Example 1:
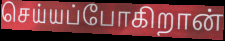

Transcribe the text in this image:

செய்யப்போகிறான்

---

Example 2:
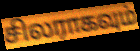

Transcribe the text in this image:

சிலராகவும்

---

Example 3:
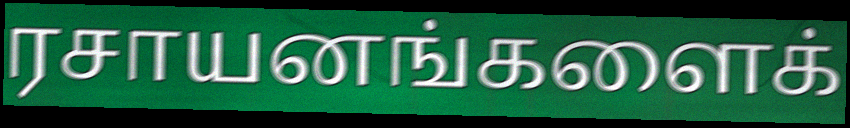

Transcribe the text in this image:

ரசாயனங்களைக்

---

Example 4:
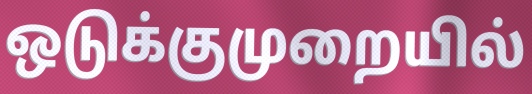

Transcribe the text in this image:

ஒடுக்குமுறையில்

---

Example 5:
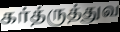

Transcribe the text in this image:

கர்த்ருத்துவ